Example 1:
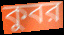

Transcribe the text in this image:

কুবর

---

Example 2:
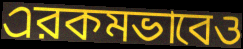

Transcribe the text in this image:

এরকমভাবেও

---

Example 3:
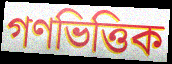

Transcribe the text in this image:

গণভিত্তিক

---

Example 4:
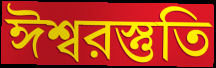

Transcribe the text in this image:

ঈশ্বরস্তুতি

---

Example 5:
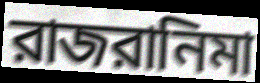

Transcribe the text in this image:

রাজরানিমা